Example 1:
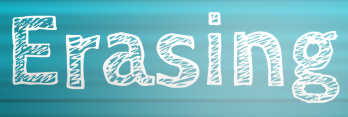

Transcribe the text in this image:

Erasing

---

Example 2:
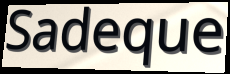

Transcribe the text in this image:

Sadeque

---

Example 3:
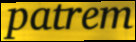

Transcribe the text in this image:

patrem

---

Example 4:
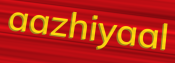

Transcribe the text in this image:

aazhiyaal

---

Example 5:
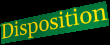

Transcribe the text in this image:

Disposition